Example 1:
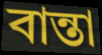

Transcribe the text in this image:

বান্তা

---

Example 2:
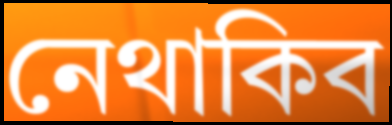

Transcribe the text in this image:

নেথাকিব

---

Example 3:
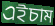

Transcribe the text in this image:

এইচাম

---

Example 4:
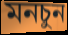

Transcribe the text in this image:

মনচুন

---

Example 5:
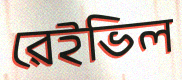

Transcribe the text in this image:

ৱেইভিল